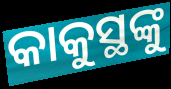
କାକୁସ୍ଥଙ୍କୁ